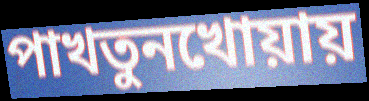
পাখতুনখোয়ায়